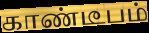
காண்டீபம்